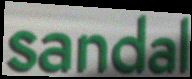
sandal